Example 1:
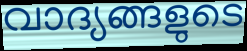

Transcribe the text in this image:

വാദ്യങ്ങളുടെ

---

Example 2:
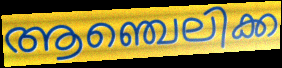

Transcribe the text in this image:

ആഞ്ചെലിക്ക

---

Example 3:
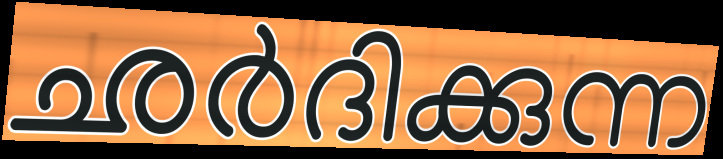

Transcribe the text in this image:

ഛർദിക്കുന്ന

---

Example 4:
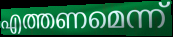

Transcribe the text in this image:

എത്തണമെന്ന്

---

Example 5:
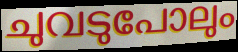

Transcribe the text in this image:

ചുവടുപോലും